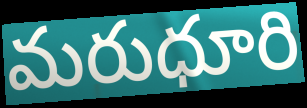
మరుధూరి